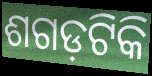
ଶଗଡ଼ଟିକି